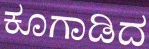
ಕೂಗಾಡಿದ